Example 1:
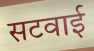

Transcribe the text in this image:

सटवाई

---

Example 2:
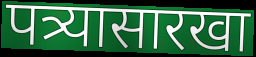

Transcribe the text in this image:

पत्र्यासारखा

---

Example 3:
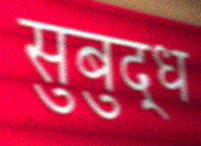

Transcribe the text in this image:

सुबुद्ध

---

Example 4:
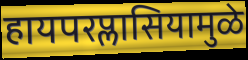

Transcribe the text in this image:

हायपरप्लासियामुळे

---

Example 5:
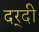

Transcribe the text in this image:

दर्दी